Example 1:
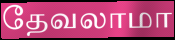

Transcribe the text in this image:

தேவலாமா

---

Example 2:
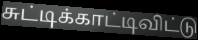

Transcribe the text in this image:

சுட்டிக்காட்டிவிட்டு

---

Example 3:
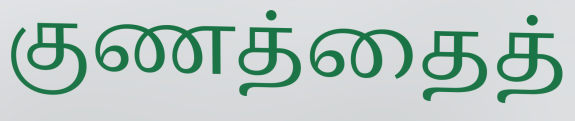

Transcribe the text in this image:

குணத்தைத்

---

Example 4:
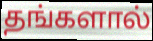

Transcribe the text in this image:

தங்களால்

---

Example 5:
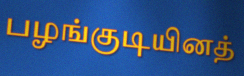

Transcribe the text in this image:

பழங்குடியினத்